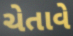
ચેતાવે